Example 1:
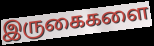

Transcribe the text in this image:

இருகைகளை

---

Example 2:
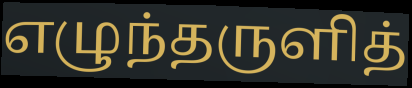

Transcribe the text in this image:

எழுந்தருளித்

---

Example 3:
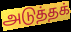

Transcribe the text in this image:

அடுத்தக்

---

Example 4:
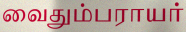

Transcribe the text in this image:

வைதும்பராயர்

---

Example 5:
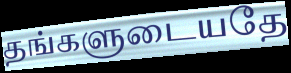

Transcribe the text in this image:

தங்களுடையதே